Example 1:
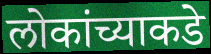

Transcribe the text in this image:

लोकांच्याकडे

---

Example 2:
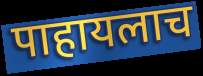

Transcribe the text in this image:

पाहायलाच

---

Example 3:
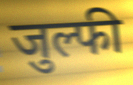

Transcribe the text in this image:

जुल्फी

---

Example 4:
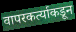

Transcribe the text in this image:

वापरकर्त्याकडून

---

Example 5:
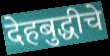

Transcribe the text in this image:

देहबुद्धीचे